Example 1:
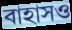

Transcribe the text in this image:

বাহাসও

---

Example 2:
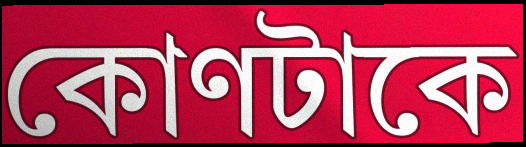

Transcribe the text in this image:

কোণটাকে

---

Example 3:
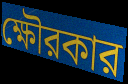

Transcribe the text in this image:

ক্ষৌরকার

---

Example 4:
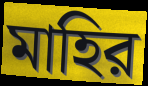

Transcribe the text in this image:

মাহির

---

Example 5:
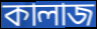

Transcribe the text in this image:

কালাজ